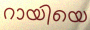
റായിയെ